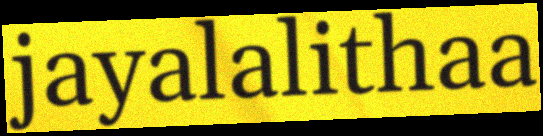
jayalalithaa